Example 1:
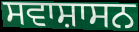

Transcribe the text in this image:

ਸਵਾਸ਼ਾਸਨ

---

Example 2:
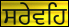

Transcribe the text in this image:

ਸਰੇਵਹਿ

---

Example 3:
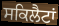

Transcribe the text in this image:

ਸਕਿਲੈਟਾਂ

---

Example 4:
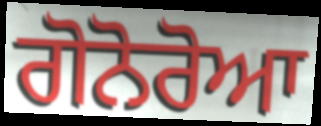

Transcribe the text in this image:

ਗੋਨੋਰੋਆ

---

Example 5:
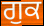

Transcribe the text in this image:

ਗੁਕ